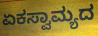
ಏಕಸ್ವಾಮ್ಯದ